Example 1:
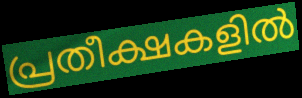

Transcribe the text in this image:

പ്രതീക്ഷകളിൽ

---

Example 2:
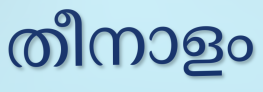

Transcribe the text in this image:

തീനാളം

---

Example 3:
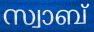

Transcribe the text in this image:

സ്വാബ്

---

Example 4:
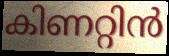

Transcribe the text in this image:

കിണറ്റിൻ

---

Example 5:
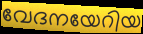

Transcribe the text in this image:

വേദനയേറിയ